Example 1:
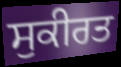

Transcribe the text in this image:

ਸੁਕੀਰਤ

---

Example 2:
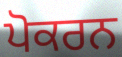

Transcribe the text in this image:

ਪੋਕਰਨ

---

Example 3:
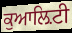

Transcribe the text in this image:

ਕੁਆਲ਼ਿਟੀ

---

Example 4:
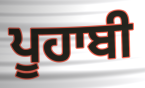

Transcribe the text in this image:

ਪੂਹਾਬੀ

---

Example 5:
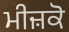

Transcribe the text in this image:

ਮੀਜ਼ਕੋ